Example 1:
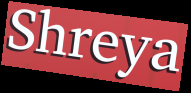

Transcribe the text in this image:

Shreya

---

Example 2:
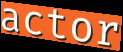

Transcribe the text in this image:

actor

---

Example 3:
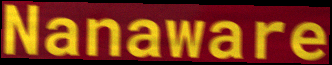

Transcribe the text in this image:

Nanaware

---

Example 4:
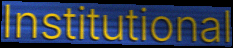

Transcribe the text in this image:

Institutional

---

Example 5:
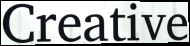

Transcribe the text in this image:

Creative